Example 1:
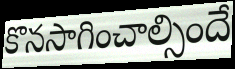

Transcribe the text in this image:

కొనసాగించాల్సిందే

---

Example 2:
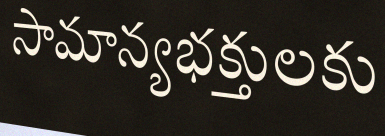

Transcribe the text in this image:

సామాన్యభక్తులకు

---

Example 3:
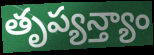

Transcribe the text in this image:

తృప్యన్త్యాం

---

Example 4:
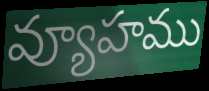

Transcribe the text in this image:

వ్యూహము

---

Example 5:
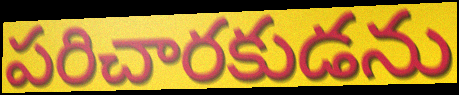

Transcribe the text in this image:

పరిచారకుడను